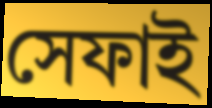
সেফাই